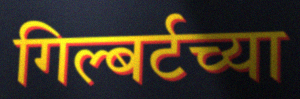
गिल्बर्टच्या